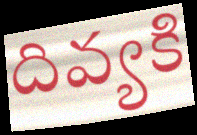
దివ్యకి